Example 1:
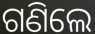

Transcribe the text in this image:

ଗଣିଲେ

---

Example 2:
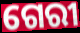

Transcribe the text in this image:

ଗେରୀ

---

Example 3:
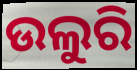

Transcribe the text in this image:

ଉଲୁରି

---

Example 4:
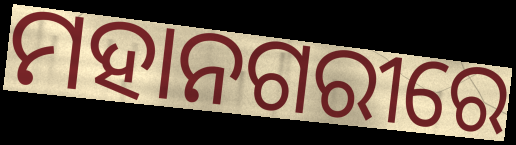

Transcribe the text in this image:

ମହାନଗରୀରେ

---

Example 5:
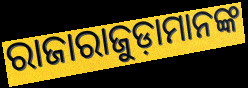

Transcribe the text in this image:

ରାଜାରାଜୁଡ଼ାମାନଙ୍କ